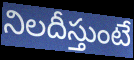
నిలదీస్తుంటే